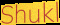
Shukl